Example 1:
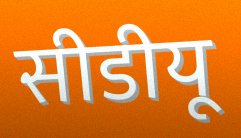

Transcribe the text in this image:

सीडीयू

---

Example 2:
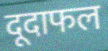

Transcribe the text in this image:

दूदाफल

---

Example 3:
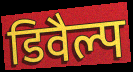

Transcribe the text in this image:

डिवैल्प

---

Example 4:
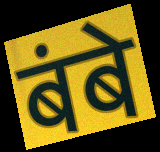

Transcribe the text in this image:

बंबे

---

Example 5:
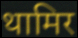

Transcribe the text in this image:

थामिर